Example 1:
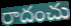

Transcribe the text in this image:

రాదంచు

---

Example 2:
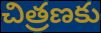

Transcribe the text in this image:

చిత్రణకు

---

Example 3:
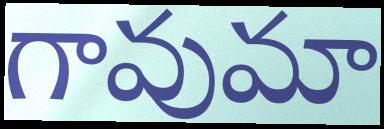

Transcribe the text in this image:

గావుమా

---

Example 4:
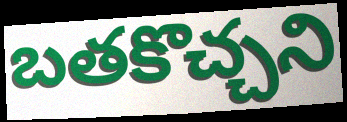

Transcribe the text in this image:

బతకొచ్చని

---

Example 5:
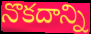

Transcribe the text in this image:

నొకదాన్ని